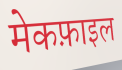
मेकफ़ाइल